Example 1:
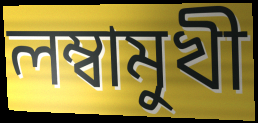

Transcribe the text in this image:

লম্বামুখী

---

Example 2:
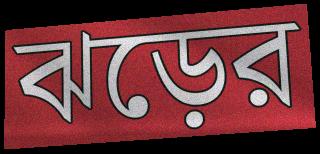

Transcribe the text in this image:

ঝড়ের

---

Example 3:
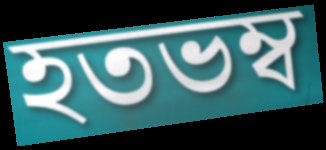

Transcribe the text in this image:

হতভম্ব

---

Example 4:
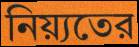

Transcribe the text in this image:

নিয়্যতের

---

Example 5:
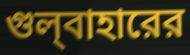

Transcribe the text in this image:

গুল্‌বাহারের